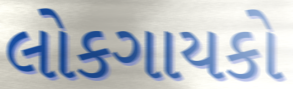
લોકગાયકો